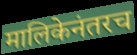
मालिकेनंतरच